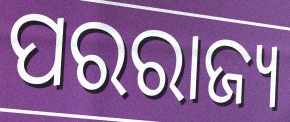
ପରରାଜ୍ୟ